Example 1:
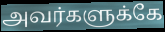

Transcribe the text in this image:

அவர்களுக்கே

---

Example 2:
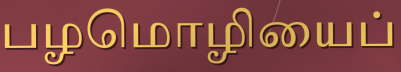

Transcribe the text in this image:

பழமொழியைப்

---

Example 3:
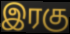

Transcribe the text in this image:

இரகு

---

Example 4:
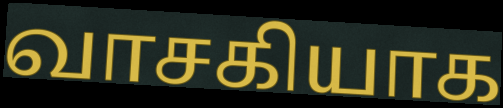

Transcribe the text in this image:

வாசகியாக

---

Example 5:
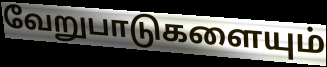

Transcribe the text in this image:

வேறுபாடுகளையும்